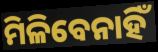
ମିଳିବେନାହିଁ